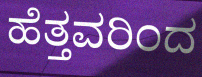
ಹೆತ್ತವರಿಂದ